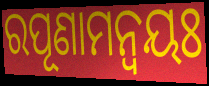
ରପୂଣାମନ୍ଵୟଃ